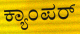
ಕ್ಯಾಂಪರ್